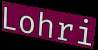
Lohri